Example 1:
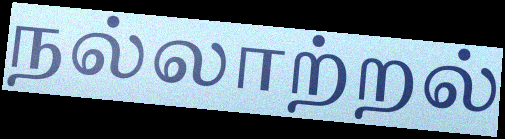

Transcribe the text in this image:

நல்லாற்றல்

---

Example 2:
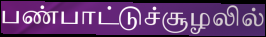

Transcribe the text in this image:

பண்பாட்டுச்சூழலில்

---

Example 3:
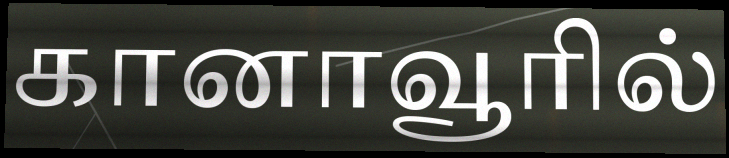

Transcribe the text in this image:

கானாவூரில்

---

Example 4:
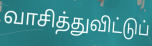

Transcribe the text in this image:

வாசித்துவிட்டுப்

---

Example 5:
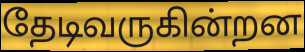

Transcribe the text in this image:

தேடிவருகின்றன